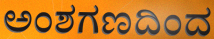
ಅಂಶಗಣದಿಂದ